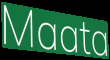
Maata